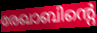
രേഖാബിന്റെ